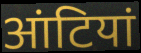
आंटियां